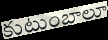
కుటుంబాలూ